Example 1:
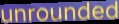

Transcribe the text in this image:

unrounded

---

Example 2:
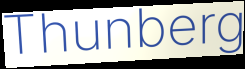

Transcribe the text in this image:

Thunberg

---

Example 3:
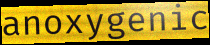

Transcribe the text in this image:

anoxygenic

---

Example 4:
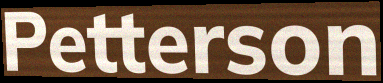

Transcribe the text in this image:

Petterson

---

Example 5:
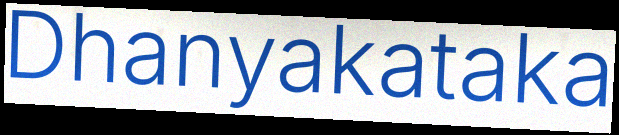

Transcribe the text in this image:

Dhanyakataka